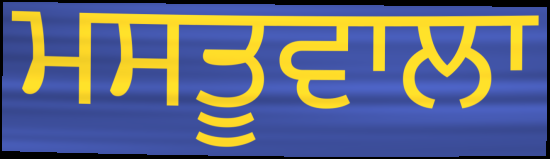
ਮਸਤੂਵਾਲਾ